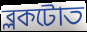
ব্লকটোত